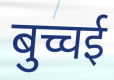
बुच्चई